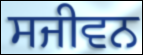
ਸਜੀਵਨ